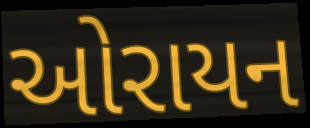
ઓરાયન